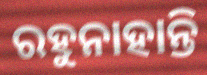
ରହୁନାହାନ୍ତି